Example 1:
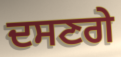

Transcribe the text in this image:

ਦਸਣਗੇ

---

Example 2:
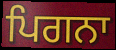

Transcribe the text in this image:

ਪਿਗਨਾ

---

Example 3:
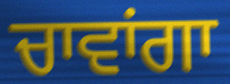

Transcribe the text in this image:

ਚਾਵਾਂਗਾ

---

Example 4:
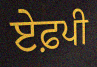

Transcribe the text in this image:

ਏਫ਼ਪੀ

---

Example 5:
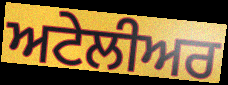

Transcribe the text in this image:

ਅਟੇਲੀਅਰ